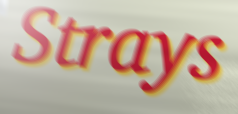
Strays